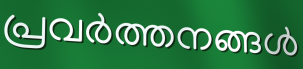
പ്രവർത്തനങ്ങൾ